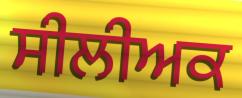
ਸੀਲੀਅਕ